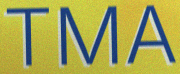
TMA